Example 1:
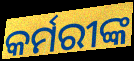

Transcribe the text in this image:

କର୍ମରୀଙ୍କ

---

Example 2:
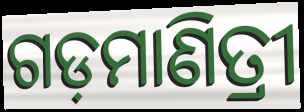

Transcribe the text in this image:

ଗଡ଼ମାଣିତ୍ରୀ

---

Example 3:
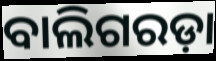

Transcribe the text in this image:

ବାଲିଗରଡ଼ା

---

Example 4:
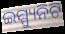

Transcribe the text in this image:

ଇମ୍ମ୍ୟୁନିଟି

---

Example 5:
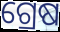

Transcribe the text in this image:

ଗ୍ରେଷ